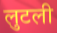
लुटली